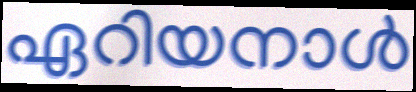
ഏറിയനാൾ